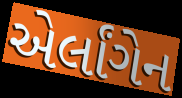
એર્લાંગેન